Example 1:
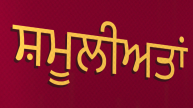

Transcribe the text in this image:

ਸ਼ਮੂਲੀਅਤਾਂ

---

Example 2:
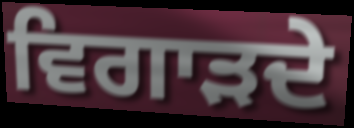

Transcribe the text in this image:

ਵਿਗਾੜਦੇ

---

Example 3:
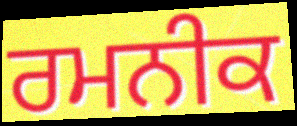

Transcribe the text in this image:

ਰਮਨੀਕ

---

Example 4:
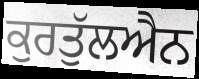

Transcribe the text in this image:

ਕੁਰਤੁੱਲਐਨ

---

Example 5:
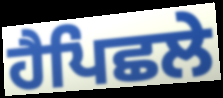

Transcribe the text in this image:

ਹੈਪਿਛਲੇ